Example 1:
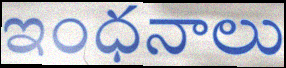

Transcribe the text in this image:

ఇంధనాలు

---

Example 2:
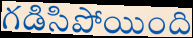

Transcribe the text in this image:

గడిసిపోయింది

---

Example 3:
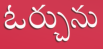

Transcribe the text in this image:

ఓర్చును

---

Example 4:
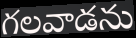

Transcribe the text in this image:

గలవాడను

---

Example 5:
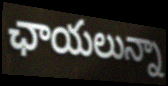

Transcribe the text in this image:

ఛాయలున్నా